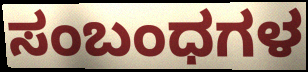
ಸಂಬಂಧಗಳ